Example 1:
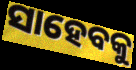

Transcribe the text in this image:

ସାହେବକୁ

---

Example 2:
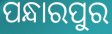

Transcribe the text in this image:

ପନ୍ଧାରପୁର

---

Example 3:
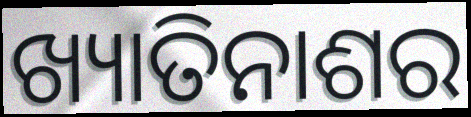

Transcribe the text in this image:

ଖ୍ୟାତିନାଶର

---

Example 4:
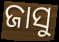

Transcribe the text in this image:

ଜାସୁ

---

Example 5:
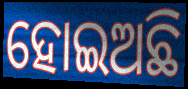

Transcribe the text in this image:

ହୋଇଅଛି